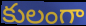
కులంగా